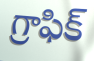
గ్రాఫిక్